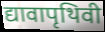
द्यावापृथिवी